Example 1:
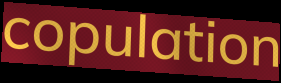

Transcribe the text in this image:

copulation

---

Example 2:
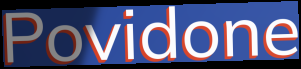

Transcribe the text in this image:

Povidone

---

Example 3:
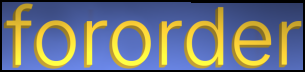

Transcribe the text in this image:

fororder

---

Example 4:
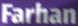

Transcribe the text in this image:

Farhan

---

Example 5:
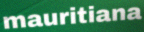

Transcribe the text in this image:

mauritiana